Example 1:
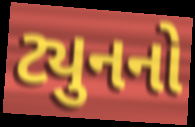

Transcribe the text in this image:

ટ્યુનનો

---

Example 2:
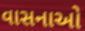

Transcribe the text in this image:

વાસનાઓ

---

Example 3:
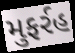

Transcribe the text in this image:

મુફર્રહ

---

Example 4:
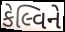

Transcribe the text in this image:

કેલ્વિને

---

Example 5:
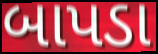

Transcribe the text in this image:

બાપડા